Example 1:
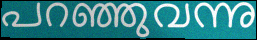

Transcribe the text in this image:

പറഞ്ഞുവന്നു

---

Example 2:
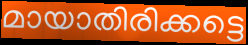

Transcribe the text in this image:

മായാതിരിക്കട്ടെ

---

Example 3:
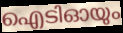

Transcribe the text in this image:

ഐടിഓയും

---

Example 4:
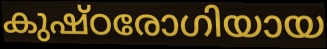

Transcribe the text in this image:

കുഷ്ഠരോഗിയായ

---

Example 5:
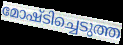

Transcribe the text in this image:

മോഷ്ടിച്ചെടുത്ത